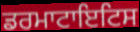
ਡਰਮਾਟਾਇਟਿਸ